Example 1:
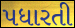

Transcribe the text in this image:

પધારતી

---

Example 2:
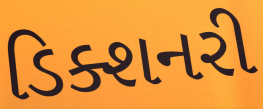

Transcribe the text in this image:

ડિક્શનરી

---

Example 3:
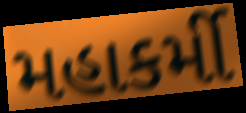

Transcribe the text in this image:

મહાકર્મી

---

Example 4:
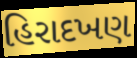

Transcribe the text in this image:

હિરાદખણ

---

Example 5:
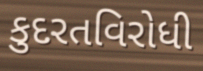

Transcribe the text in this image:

કુદરતવિરોધી